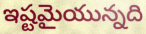
ఇష్టమైయున్నది